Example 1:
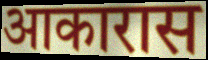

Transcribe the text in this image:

आकारास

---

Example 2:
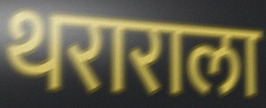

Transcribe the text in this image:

थराराला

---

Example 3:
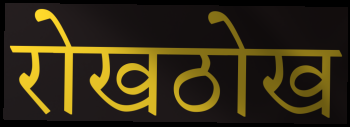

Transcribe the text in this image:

रोखठोख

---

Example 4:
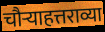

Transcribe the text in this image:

चौऱ्याहत्तराव्या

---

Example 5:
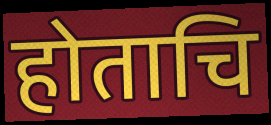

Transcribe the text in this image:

होताचि